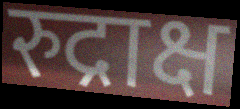
रुद्राक्ष